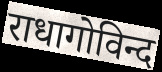
राधागोविन्द